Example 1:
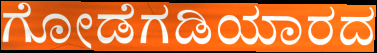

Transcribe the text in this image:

ಗೋಡೆಗಡಿಯಾರದ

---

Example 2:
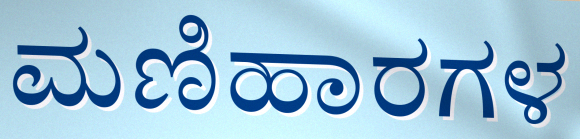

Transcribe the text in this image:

ಮಣಿಹಾರಗಳ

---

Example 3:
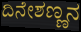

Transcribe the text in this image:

ದಿನೇಶಣ್ಣನ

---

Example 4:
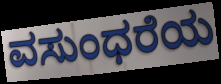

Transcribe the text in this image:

ವಸುಂಧರೆಯ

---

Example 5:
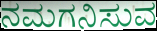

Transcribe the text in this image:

ನಮಗನಿಸುವ